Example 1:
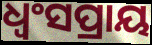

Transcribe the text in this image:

ଧ୍ୱଂସପ୍ରାୟ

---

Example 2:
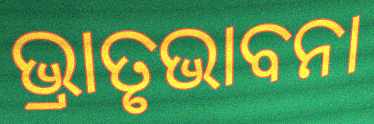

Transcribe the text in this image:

ଭ୍ରାତୃଭାବନା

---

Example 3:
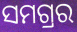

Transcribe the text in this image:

ସମଗ୍ରର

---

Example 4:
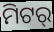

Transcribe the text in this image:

ମିଟର୍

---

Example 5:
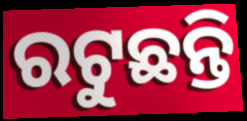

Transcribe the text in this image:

ରଟୁଛନ୍ତି